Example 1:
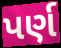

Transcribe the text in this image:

પર્ણ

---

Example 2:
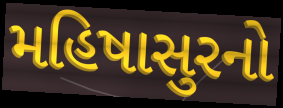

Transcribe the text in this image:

મહિષાસુરનો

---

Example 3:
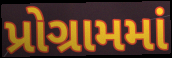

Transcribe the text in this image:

પ્રોગ્રામમાં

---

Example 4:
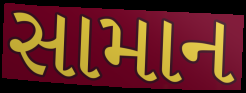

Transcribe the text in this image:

સામાન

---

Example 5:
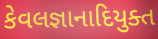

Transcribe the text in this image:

કેવલજ્ઞાનાદિયુક્ત